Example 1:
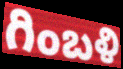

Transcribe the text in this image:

గింబళి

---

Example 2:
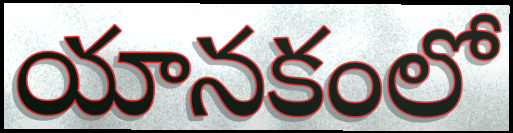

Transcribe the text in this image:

యానకంలో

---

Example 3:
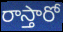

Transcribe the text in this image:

రాస్తారో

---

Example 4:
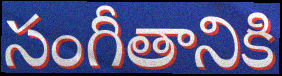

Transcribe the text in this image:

సంగీతానికి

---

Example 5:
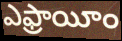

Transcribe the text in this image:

ఎఫ్రాయీం